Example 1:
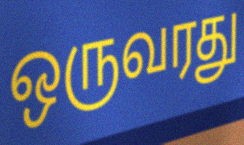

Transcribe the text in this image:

ஒருவரது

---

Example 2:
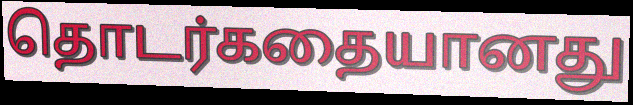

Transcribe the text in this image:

தொடர்கதையானது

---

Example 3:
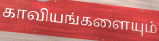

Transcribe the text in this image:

காவியங்களையும்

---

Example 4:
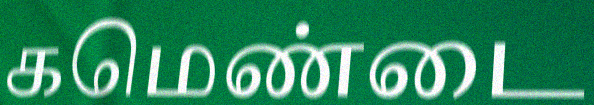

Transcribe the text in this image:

கமெண்டை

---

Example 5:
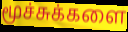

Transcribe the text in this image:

மூச்சுக்களை